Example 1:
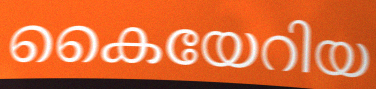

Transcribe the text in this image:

കൈയേറിയ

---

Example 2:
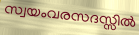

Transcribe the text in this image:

സ്വയംവരസദസ്സിൽ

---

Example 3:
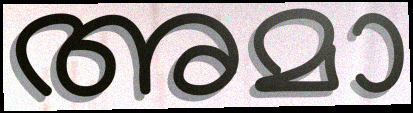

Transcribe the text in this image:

അമാ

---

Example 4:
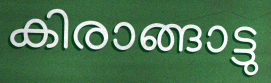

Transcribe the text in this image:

കിരാങ്ങാട്ടു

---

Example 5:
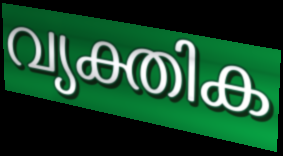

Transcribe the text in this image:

വ്യക്തിക